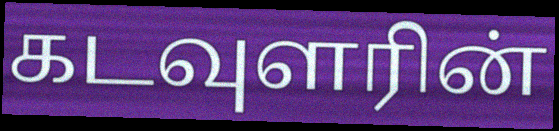
கடவுளரின்